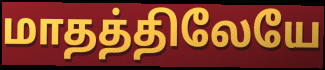
மாதத்திலேயே